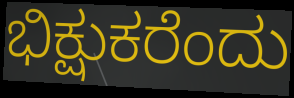
ಭಿಕ್ಷುಕರೆಂದು